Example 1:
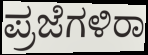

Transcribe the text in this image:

ಪ್ರಜೆಗಳಿರಾ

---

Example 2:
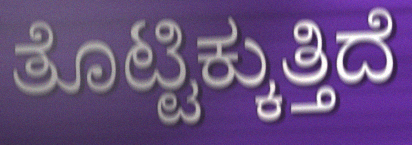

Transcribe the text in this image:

ತೊಟ್ಟಿಕ್ಕುತ್ತಿದೆ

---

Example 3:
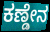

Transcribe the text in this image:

ಕಣ್ಡೇನ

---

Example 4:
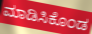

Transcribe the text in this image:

ಮಾಡಿಸಿಕೊಂಡ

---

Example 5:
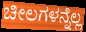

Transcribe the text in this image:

ಚೀಲಗಳನ್ನೆಲ್ಲ